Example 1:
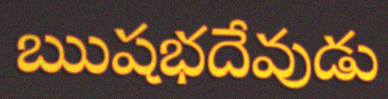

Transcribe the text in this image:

ఋషభదేవుడు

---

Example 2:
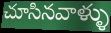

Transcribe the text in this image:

చూసినవాళ్ళు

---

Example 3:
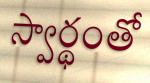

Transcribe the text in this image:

స్వార్థంతో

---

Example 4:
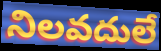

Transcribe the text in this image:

నిలవదులే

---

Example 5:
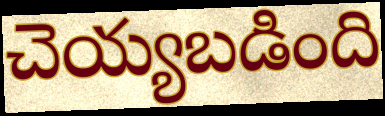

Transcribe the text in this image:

చెయ్యబడింది